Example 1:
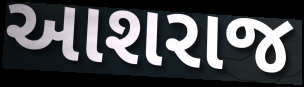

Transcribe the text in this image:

આશરાજ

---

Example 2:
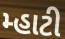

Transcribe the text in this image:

મ્હાટી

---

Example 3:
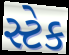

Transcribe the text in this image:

સ્ટેક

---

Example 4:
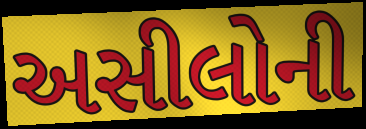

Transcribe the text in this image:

અસીલોની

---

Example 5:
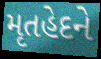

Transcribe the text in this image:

મૃતહેદને